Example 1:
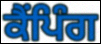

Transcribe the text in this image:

ਕੈਂਪਿੰਗ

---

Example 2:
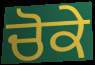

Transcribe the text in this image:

ਚੋਕੇ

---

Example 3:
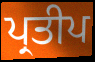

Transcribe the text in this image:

ਪ੍ਰਤੀਪ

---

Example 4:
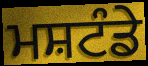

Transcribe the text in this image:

ਮਸ਼ਟੰਡੇ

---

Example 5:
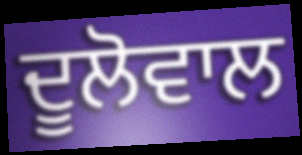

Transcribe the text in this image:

ਦੂਲੋਵਾਲ